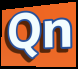
Qn